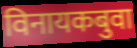
विनायकबुवा